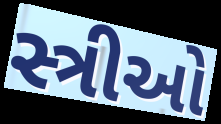
સ્ત્રીઓ